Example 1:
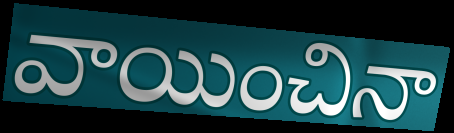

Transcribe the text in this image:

వాయించినా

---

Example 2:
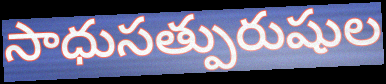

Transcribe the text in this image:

సాధుసత్పురుషుల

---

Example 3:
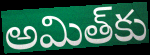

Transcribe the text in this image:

అమిత్‌కు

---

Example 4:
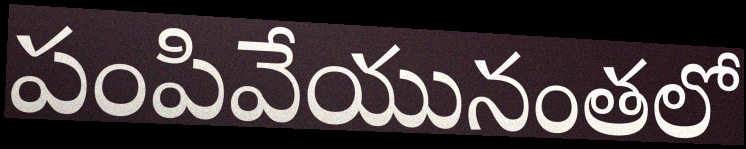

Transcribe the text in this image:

పంపివేయునంతలో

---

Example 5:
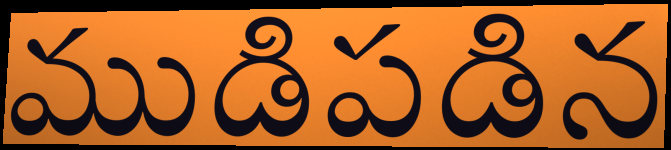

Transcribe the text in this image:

ముడిపడిన